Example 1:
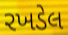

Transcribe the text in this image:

રખડેલ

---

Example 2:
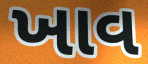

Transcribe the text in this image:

ખાવ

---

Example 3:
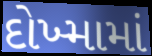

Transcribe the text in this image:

દોખ્મામાં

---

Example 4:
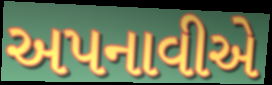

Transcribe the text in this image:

અપનાવીએ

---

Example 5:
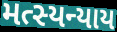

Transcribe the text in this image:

મત્સ્યન્યાય